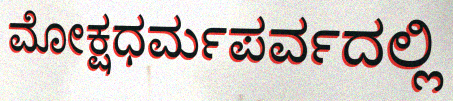
ಮೋಕ್ಷಧರ್ಮಪರ್ವದಲ್ಲಿ